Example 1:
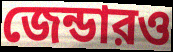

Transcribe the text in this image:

জেন্ডারও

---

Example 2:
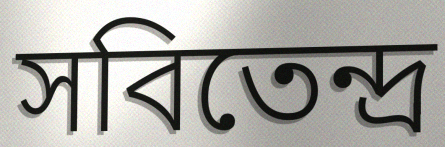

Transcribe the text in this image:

সবিতেন্দ্র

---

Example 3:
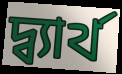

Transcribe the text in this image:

দ্ব্যার্থ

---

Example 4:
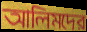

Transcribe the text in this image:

আলিমদের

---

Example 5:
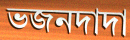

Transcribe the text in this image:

ভজনদাদা